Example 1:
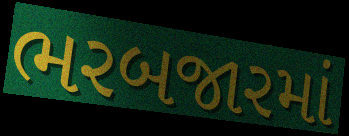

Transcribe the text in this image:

ભરબજારમાં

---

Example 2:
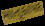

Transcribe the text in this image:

માતૃકાપદ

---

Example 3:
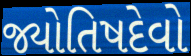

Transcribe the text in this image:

જ્યોતિષદેવો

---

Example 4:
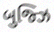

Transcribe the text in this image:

બુજ્ઝિ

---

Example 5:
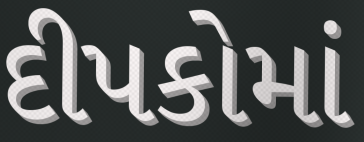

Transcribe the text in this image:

દીપકોમાં